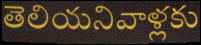
తెలియనివాళ్లకు